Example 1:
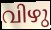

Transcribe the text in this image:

വിഴു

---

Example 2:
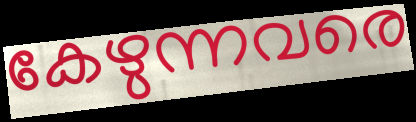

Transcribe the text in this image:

കേഴുന്നവരെ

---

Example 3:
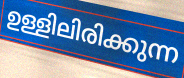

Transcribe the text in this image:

ഉള്ളിലിരിക്കുന്ന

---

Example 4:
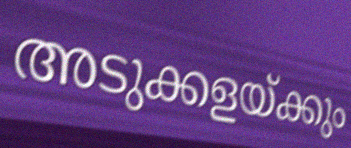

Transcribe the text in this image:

അടുക്കളയ്ക്കും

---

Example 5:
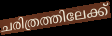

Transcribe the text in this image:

ചരിത്രത്തിലേക്ക്